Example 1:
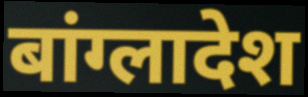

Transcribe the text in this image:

बांग्लादेश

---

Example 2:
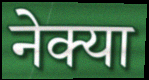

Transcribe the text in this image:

नेक्या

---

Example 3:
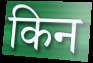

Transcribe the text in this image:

किन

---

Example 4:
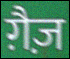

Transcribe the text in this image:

ग़ैज़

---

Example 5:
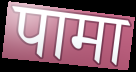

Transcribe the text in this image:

पामा